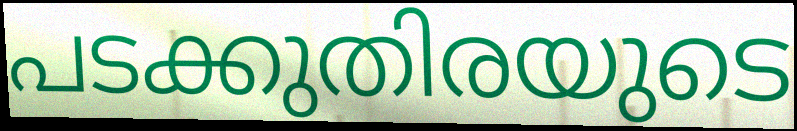
പടക്കുതിരയുടെ